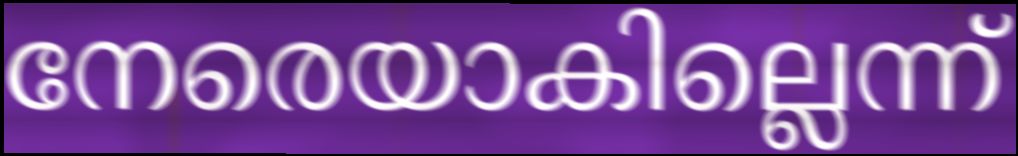
നേരെയാകില്ലെന്ന്